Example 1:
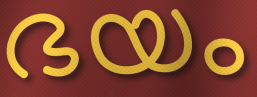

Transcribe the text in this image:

ഭയം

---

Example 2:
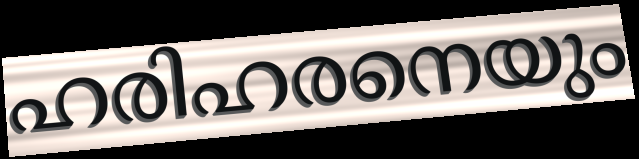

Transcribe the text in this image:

ഹരിഹരനെയും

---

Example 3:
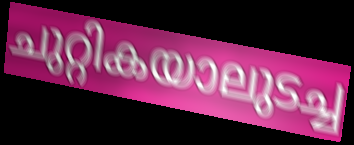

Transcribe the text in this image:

ചുറ്റികയാലുടച്ച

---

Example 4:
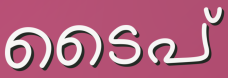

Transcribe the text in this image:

ടൈപ്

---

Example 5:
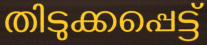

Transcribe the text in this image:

തിടുക്കപ്പെട്ട്